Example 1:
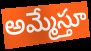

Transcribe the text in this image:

అమ్మేస్తూ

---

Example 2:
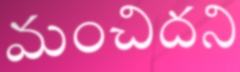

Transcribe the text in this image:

మంచిదని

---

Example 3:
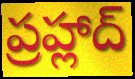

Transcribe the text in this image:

ప్రహ్లాద్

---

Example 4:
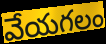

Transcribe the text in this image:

వేయగలం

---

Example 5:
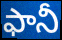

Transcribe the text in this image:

ఫానీ